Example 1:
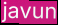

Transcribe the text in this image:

javun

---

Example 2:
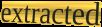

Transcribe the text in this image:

extracted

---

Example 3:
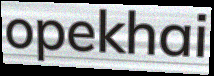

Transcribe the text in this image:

opekhai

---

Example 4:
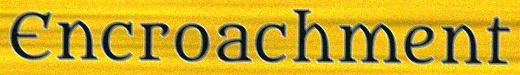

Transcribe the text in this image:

Encroachment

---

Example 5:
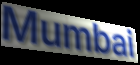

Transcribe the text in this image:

Mumbai